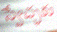
స్వేచ్ఛకు